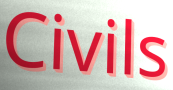
Civils